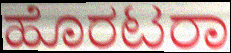
ಹೊರಟರಾ